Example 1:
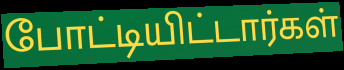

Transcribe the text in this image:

போட்டியிட்டார்கள்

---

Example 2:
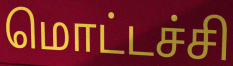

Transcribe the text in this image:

மொட்டச்சி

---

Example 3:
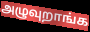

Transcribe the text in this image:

அழுவுறாங்க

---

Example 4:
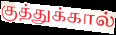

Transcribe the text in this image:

குத்துக்கால்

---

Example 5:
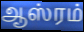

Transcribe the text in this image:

ஆஸ்ரம்